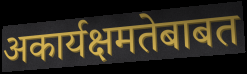
अकार्यक्षमतेबाबत